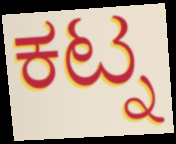
ಕಟ್ನ